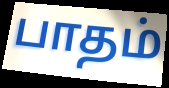
பாதம்